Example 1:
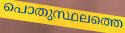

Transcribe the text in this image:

പൊതുസ്ഥലത്തെ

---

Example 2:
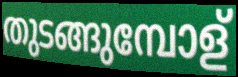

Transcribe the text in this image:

തുടങ്ങുമ്പോള്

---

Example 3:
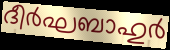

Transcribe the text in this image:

ദീർഘബാഹുർ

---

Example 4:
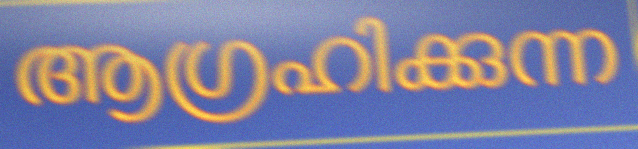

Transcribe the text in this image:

ആഗ്രഹിക്കുന്ന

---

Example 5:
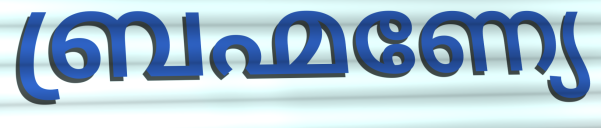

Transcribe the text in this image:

ബ്രഹ്മണ്യേ